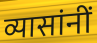
व्यासांनीं